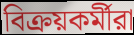
বিক্রয়কর্মীরা